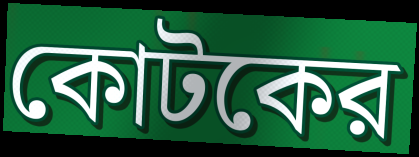
কোটকের